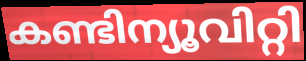
കണ്ടിന്യൂവിറ്റി